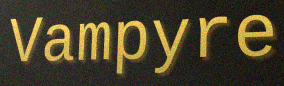
Vampyre